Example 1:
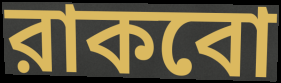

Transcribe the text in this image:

রাকবো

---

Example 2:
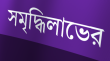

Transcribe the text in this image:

সমৃদ্ধিলাভের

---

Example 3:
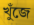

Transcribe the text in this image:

খুঁজে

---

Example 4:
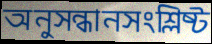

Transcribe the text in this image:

অনুসন্ধানসংশ্লিষ্ট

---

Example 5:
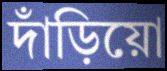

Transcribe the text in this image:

দাঁড়িয়ো